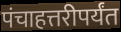
पंचाहत्तरीपर्यंत